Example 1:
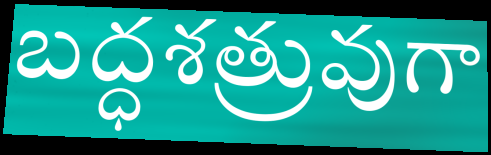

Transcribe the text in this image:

బద్ధశత్రువుగా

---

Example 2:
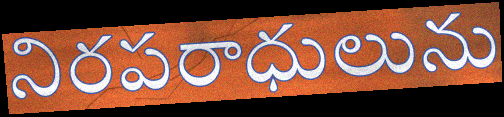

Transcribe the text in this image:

నిరపరాధులును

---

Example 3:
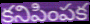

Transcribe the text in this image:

కనిపింపక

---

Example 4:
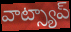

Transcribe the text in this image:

వాట్స్యాప్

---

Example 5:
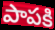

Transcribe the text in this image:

పాపకి